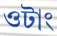
ওটাং